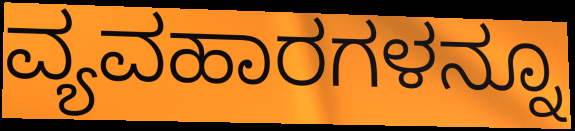
ವ್ಯವಹಾರಗಳನ್ನೂ